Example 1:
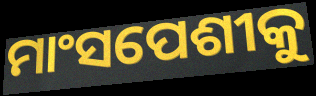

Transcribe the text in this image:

ମାଂସପେଶୀକୁ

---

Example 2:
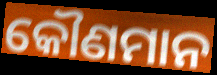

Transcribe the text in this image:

କୌଣମାନ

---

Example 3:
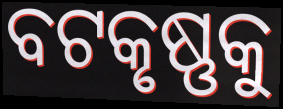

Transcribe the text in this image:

ବଟକୃଷ୍ଣକୁ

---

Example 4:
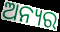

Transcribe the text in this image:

ଅନ୍ୟର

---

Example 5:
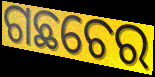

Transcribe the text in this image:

ଗଛଚେର